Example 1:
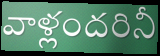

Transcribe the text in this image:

వాళ్లందరినీ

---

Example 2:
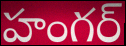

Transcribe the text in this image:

హంగర్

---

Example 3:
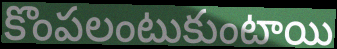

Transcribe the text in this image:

కొంపలంటుకుంటాయి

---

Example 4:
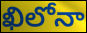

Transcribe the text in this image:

ఖిలోనా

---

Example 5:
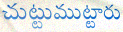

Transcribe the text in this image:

చుట్టుముట్టారు